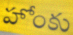
హోంకు